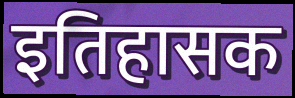
इतिहासक